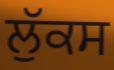
ਲੁੱਕਸ